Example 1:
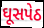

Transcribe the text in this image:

ઘૂસપેઠ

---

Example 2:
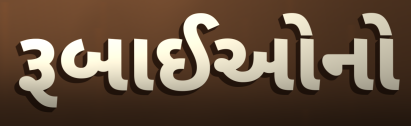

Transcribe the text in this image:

રૂબાઈઓનો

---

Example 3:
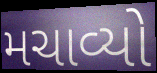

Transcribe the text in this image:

મચાવ્યો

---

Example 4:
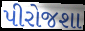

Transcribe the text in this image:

પીરોજશા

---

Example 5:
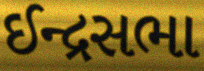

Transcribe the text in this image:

ઈન્દ્રસભા